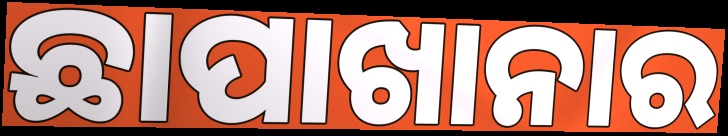
ଛାପାଖାନାର